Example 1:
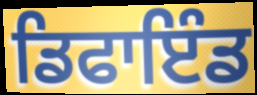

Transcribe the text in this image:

ਡਿਫਾਇੰਡ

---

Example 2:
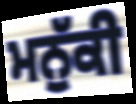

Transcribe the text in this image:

ਮਨੁੱਕੀ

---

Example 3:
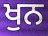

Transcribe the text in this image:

ਖੁਨ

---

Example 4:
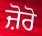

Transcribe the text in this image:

ਜ਼ੋਰੋ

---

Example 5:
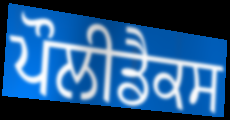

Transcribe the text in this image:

ਪੌਲੀਡੈਕਸ